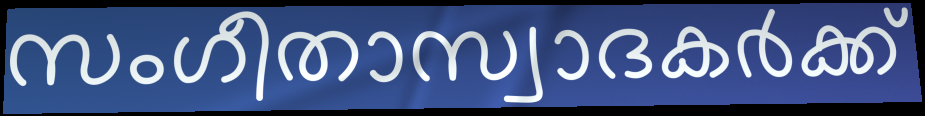
സംഗീതാസ്വാദകർക്ക്